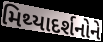
મિથ્યાદર્શનોને